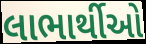
લાભાર્થીઓ